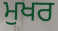
ਮੁਖਰ